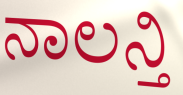
ನಾಲನ್ತಿ